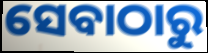
ସେବାଠାରୁ